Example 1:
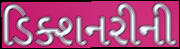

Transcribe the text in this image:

ડિક્શનરીની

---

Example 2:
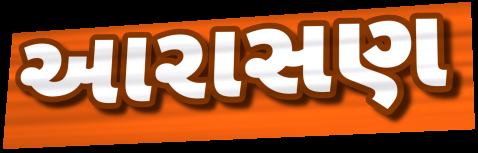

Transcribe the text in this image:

આરાસણ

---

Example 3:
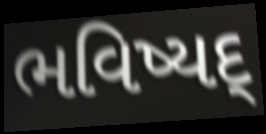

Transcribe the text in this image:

ભવિષ્યદ્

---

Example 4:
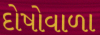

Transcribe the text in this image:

દોષોવાળા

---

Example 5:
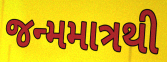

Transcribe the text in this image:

જન્મમાત્રથી